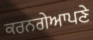
ਕਰਨਗੇਆਪਣੇ